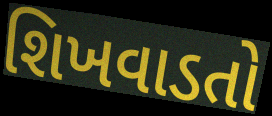
શિખવાડતો